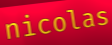
nicolas